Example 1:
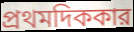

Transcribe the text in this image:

প্রথমদিককার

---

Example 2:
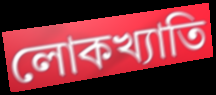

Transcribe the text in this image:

লোকখ্যাতি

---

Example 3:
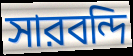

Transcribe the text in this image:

সারবন্দি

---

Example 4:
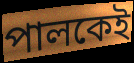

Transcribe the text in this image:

পালকেই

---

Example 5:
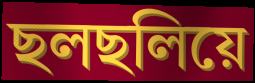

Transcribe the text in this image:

ছলছলিয়ে